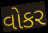
વોકર